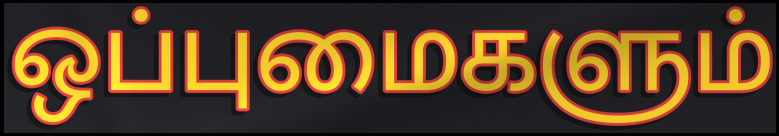
ஒப்புமைகளும்